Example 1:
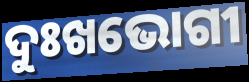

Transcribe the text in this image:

ଦୁଃଖଭୋଗୀ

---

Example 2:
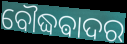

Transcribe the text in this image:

ବୌଦ୍ଧଵାଦର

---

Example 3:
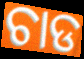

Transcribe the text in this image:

ଚାଡ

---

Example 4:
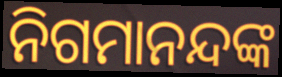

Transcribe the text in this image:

ନିଗମାନନ୍ଦଙ୍କ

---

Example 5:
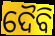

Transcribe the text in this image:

ଦୈବି